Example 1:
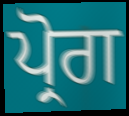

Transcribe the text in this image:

ਪ੍ਰੋਗ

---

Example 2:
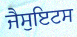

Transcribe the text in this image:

ਜੈਸੁਇਟਸ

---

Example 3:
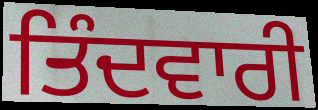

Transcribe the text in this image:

ਤਿੰਦਵਾਰੀ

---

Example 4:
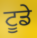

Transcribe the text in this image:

ਟੂਡੇ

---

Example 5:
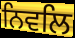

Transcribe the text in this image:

ਨਿਵਲਿ